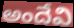
అందేవి